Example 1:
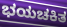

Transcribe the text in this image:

ಭಯಚಕಿತ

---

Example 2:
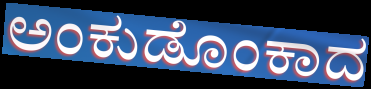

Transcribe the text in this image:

ಅಂಕುಡೊಂಕಾದ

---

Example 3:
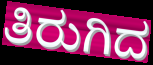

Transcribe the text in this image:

ತಿರುಗಿದ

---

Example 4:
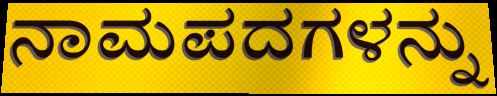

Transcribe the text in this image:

ನಾಮಪದಗಳನ್ನು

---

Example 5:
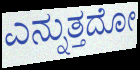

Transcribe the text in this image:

ಎನ್ನುತ್ತದೋ